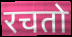
रचतो